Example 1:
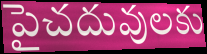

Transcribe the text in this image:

పైచదువులకు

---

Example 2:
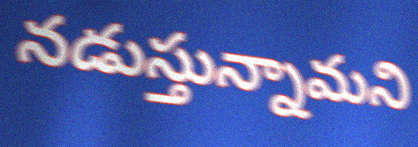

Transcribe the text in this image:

నడుస్తున్నామని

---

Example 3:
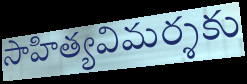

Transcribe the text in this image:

సాహిత్యవిమర్శకు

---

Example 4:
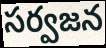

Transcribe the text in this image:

సర్వజన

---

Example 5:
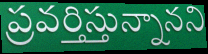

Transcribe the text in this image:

ప్రవర్తిస్తున్నానని